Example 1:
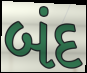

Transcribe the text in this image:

બંદ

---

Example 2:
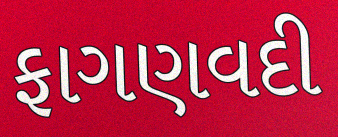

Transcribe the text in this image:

ફાગણવદી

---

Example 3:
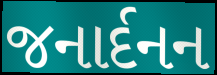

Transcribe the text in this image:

જનાર્દનન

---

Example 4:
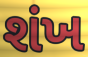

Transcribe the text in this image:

શંખ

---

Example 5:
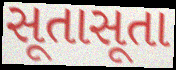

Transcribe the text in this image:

સૂતાસૂતા